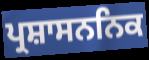
ਪ੍ਰਸ਼ਾਸਨਨਿਕ